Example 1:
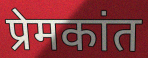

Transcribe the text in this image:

प्रेमकांत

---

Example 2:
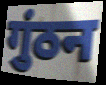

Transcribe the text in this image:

गुंठन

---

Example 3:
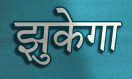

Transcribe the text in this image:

झुकेगा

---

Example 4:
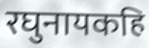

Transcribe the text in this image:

रघुनायकहि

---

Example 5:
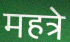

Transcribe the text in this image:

महत्रे